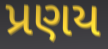
પ્રણય